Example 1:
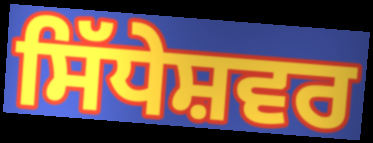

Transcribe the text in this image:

ਸਿੱਧੇਸ਼ਵਰ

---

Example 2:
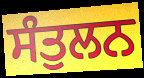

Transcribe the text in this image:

ਸੰਤੁਲਨ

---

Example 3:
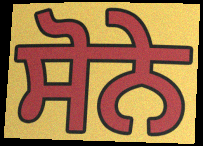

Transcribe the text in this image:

ਸੋਨੇ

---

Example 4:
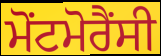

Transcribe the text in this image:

ਮੋਂਟਮੋਰੈਂਸੀ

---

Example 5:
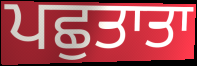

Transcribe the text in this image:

ਪਛੁਤਾਤਾ